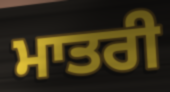
ਮਾਤਰੀ